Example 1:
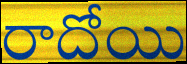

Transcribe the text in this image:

రాదోయి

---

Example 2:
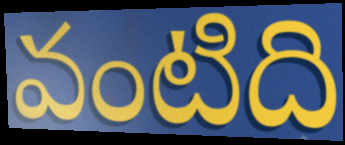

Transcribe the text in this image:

వంటిది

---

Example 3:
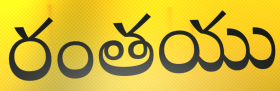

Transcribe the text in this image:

రంతయు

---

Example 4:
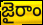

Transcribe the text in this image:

జైరాం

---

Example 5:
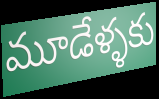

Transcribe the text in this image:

మూడేళ్ళకు